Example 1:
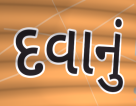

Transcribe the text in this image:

દવાનું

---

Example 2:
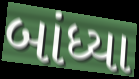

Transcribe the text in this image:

બાંધ્યા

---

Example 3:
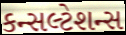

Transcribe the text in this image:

કન્સલ્ટેશન્સ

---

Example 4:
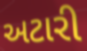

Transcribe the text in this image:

અટારી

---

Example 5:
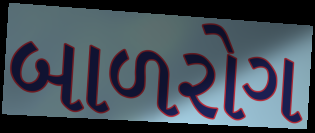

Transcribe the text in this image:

બાળરોગ